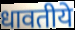
धावतीये